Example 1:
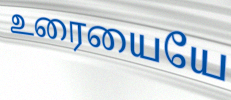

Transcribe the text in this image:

உரையையே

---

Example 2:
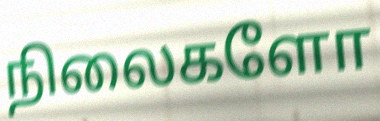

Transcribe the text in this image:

நிலைகளோ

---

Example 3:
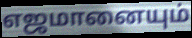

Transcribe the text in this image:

எஜமானையும்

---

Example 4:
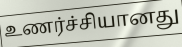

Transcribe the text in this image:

உணர்ச்சியானது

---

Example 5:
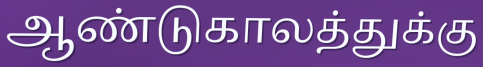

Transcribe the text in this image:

ஆண்டுகாலத்துக்கு